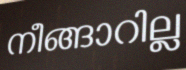
നീങ്ങാറില്ല